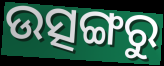
ଉତ୍ସଙ୍ଗରୁ